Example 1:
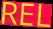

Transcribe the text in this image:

REL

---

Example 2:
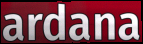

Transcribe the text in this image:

ardana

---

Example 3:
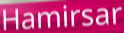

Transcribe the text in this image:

Hamirsar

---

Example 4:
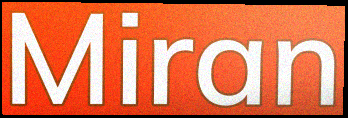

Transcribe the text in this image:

Miran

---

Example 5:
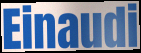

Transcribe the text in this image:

Einaudi